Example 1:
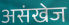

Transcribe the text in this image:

असंखेज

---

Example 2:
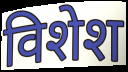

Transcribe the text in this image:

विशेश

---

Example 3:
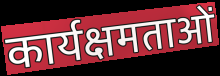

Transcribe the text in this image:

कार्यक्षमताओं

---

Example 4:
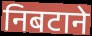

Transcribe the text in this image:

निबटाने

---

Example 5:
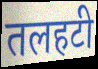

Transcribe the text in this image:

तलहटी